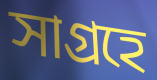
সাগ্রহে